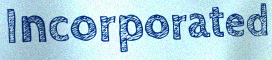
Incorporated